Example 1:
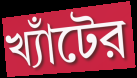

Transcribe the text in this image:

খ্যাঁটের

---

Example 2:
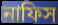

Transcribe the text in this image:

নাফিস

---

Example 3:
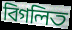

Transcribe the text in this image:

বিগলিত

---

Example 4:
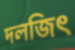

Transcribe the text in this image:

দলজিৎ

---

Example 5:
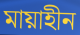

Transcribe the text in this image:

মায়াহীন